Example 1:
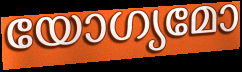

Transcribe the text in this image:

യോഗ്യമോ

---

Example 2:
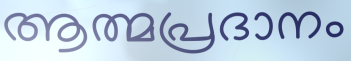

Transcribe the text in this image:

ആത്മപ്രദാനം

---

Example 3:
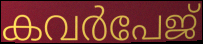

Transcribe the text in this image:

കവർപേജ്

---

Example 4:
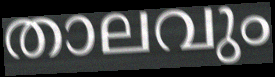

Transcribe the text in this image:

താലവും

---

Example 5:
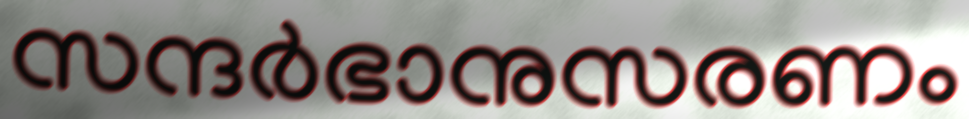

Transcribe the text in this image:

സന്ദർഭാനുസരണം